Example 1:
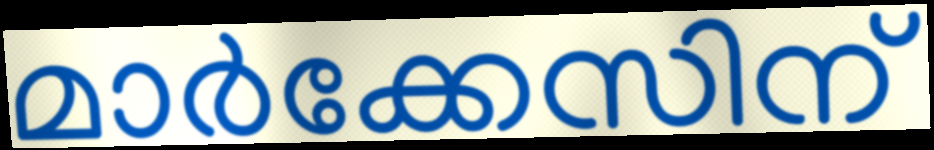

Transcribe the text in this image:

മാർക്കേസിന്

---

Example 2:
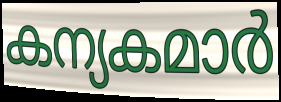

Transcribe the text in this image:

കന്യകമാർ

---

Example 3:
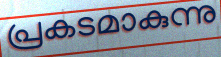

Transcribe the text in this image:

പ്രകടമാകുന്നു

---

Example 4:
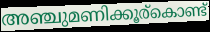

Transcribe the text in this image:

അഞ്ചുമണിക്കൂര്കൊണ്ട്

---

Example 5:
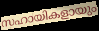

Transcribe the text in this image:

സഹായികളായും